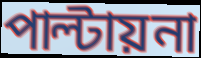
পাল্টায়না